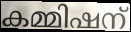
കമ്മിഷന്